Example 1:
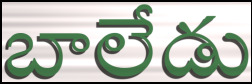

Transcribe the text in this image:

బాలేడు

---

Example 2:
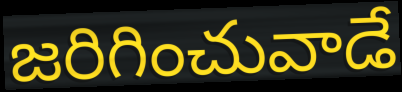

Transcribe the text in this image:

జరిగించువాడే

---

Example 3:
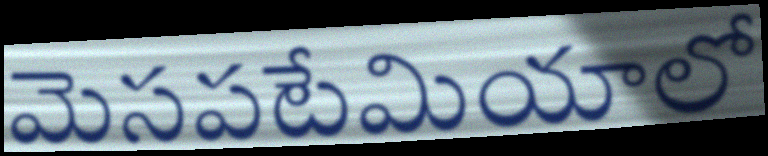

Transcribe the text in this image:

మెసపటేమియాలో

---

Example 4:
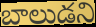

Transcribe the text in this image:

బాలుడని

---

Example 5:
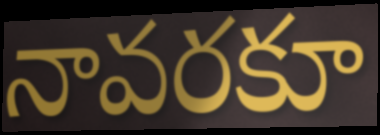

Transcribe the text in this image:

నావరకూ